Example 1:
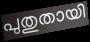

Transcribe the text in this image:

പുതുതായി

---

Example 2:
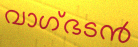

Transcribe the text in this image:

വാഗ്ഭടൻ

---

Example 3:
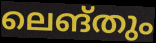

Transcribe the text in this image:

ലെങ്തും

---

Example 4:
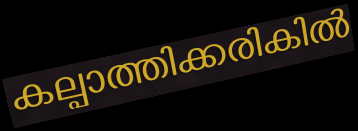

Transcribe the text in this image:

കല്പാത്തിക്കരികിൽ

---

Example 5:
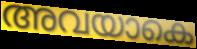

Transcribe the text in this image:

അവയാകെ